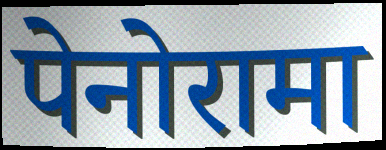
पेनोरामा